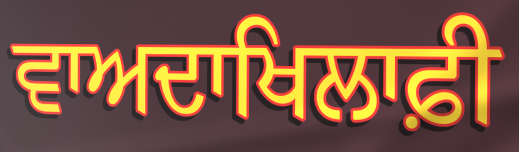
ਵਾਅਦਾਖਿਲਾਫ਼ੀ